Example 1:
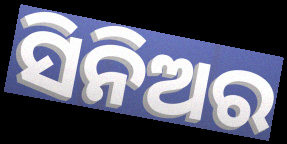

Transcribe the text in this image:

ସିନିଅର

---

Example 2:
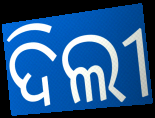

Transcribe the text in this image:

ଦିଲୀ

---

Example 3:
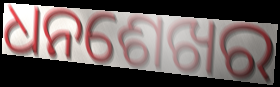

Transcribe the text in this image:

ଧନଶେଖର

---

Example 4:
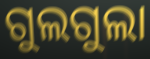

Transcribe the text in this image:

ଗୁଲଗୁଲା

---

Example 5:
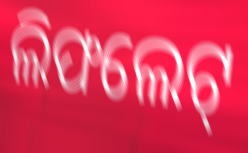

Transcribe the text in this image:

ଲିଫଲେଟ୍